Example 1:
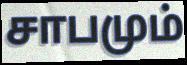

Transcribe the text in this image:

சாபமும்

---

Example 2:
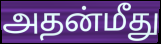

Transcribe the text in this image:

அதன்மீது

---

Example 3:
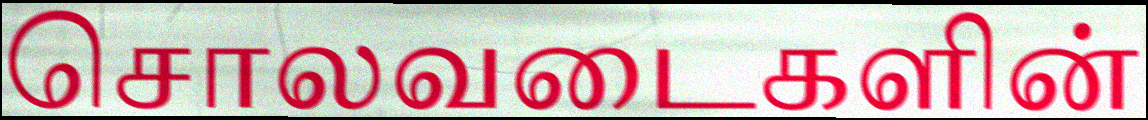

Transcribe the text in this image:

சொலவடைகளின்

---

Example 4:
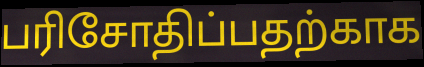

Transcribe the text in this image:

பரிசோதிப்பதற்காக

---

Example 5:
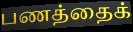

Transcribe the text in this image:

பணத்தைக்